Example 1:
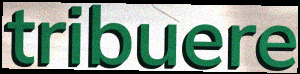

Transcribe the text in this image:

tribuere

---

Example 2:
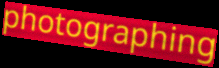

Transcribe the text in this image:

photographing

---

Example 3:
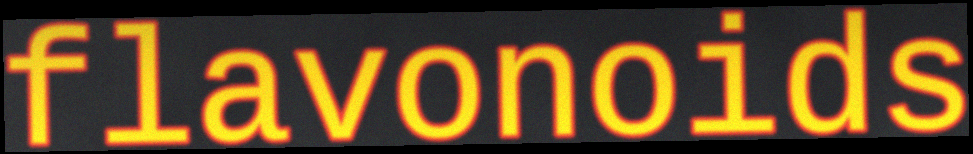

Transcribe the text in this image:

flavonoids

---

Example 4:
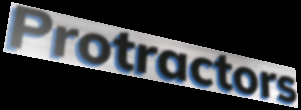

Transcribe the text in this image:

Protractors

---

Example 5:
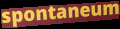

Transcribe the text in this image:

spontaneum